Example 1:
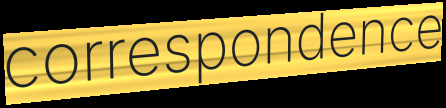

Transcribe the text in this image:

correspondence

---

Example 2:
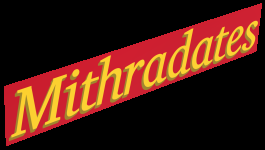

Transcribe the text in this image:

Mithradates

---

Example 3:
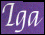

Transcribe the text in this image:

Iga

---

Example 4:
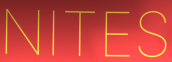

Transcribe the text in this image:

NITES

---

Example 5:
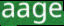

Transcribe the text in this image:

aage